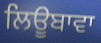
ਲਿਊਬਾਵਾ